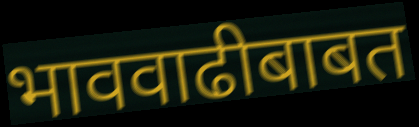
भाववाढीबाबत